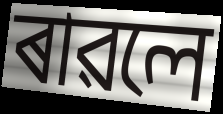
ৰাৱলে